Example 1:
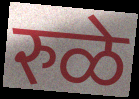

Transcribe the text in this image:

रुळे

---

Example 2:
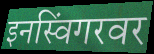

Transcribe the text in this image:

इनस्विंगरवर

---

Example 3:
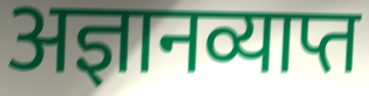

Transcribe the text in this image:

अज्ञानव्याप्त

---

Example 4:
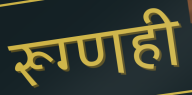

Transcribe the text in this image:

रूग्णही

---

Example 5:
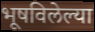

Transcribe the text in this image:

भूषविलेल्या